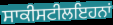
ਸਾਕੀਸਟੀਲਇਹਨਾਂ